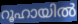
റൂഹായിൽ